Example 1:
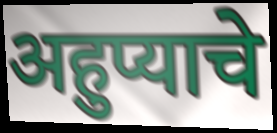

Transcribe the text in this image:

अहुप्याचे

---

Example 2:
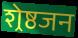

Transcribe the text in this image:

श्रेष्ठजन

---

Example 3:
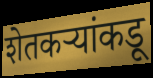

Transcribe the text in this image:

शेतकऱ्यांकडू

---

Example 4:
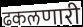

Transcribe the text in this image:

ढकलणारी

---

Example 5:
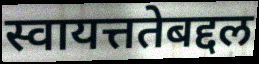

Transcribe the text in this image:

स्वायत्ततेबद्दल